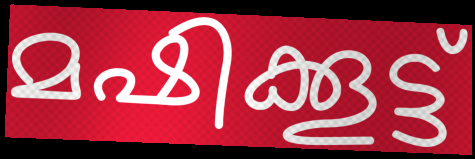
മഷിക്കൂട്ട്